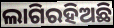
ଲାଗିରହିଅଛି